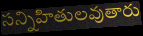
సన్నిహితులవుతారు